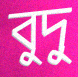
বুদু